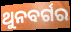
ଥୁନବର୍ଗର